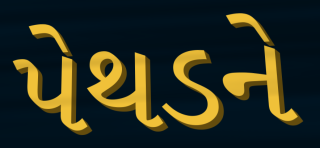
પેથડને